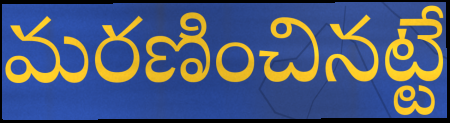
మరణించినట్టే